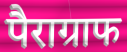
पैराग्राफ